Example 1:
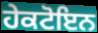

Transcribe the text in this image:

ਹੇਕਟੋਇਨ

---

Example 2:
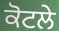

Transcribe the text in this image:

ਕੋਟਲੇ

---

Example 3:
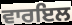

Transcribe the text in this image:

ਵਾਰਇਲ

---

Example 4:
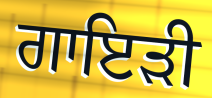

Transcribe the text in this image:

ਗਾਇੜੀ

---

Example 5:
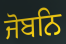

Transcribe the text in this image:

ਜੋਬਨਿ